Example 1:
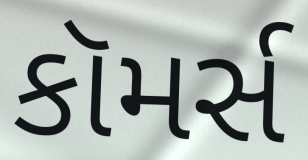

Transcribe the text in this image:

કૉમર્સ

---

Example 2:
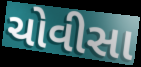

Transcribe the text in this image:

ચોવીસા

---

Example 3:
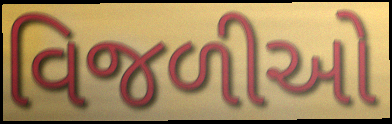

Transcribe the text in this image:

વિજળીઓ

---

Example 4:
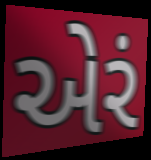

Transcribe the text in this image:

એરં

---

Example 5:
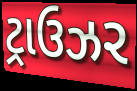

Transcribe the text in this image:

ટ્રાઉઝર